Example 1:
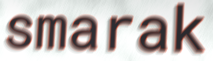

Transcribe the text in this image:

smarak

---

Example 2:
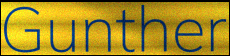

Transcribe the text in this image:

Gunther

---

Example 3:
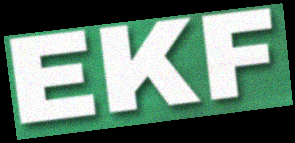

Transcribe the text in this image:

EKF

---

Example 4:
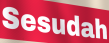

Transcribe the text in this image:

Sesudah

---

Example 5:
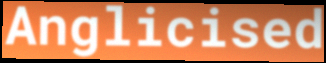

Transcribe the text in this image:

Anglicised